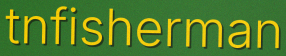
tnfisherman